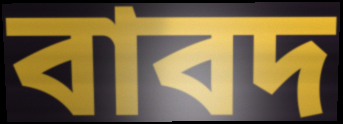
বাবদ